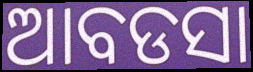
ଆବଡସା